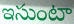
ఇసుంటా